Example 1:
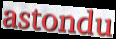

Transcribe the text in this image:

astondu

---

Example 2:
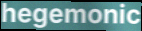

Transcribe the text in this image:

hegemonic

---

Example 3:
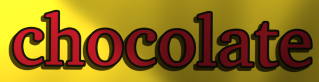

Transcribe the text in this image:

chocolate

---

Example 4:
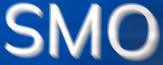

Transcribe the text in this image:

SMO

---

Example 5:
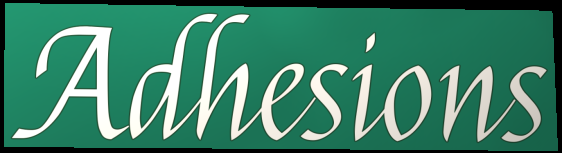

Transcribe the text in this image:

Adhesions